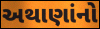
અથાણાંનો